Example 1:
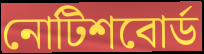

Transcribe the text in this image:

নোটিশবোর্ড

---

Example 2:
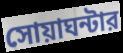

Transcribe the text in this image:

সোয়াঘন্টার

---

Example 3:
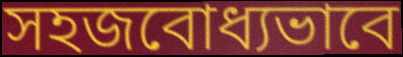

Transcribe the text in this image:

সহজবোধ্যভাবে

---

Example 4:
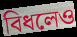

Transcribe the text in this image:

বিধলেও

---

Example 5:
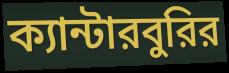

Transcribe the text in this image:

ক্যান্টারবুরির